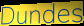
Dundes